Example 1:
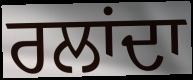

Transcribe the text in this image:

ਰਲਾਂਦਾ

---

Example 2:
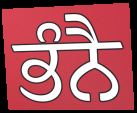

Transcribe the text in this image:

ਭੰਨੈ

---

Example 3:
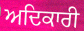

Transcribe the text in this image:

ਅਦਿਕਾਰੀ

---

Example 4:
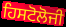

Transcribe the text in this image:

ਹਿਸਟੋਲੋਜੀ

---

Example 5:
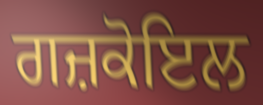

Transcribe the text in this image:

ਗਜ਼ਕੋਇਲ